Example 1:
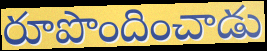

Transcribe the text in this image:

రూపొందించాడు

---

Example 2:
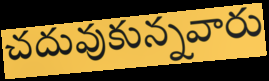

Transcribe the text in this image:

చదువుకున్నవారు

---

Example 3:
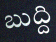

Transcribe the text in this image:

బుద్ది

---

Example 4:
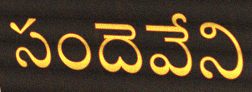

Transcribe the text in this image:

సందెవేని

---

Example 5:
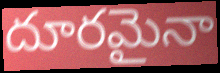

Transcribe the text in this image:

దూరమైనా